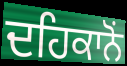
ਦਹਿਕਾਨੋਂ